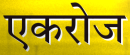
एकरोज